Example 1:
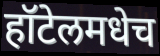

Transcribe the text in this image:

हॉटेलमधेच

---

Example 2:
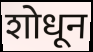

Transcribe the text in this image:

शोधून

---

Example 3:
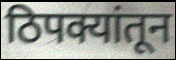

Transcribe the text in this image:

ठिपक्यांतून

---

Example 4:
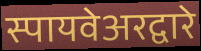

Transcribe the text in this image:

स्पायवेअरद्वारे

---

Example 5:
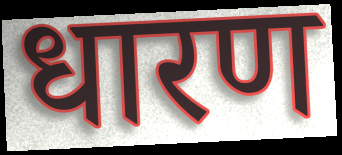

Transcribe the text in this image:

धारण